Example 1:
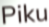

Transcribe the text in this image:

Piku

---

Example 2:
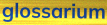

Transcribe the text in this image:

glossarium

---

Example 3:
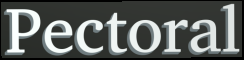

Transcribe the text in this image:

Pectoral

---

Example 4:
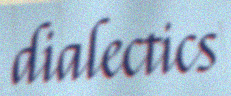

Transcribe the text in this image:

dialectics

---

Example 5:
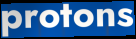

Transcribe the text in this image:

protons